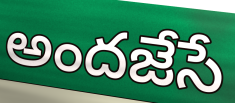
అందజేసే